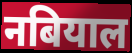
नबियाल